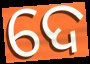
ଦେ